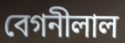
বেগনীলাল